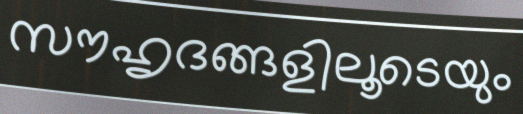
സൗഹൃദങ്ങളിലൂടെയും